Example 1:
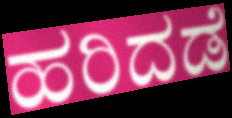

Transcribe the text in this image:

ಹರಿದಡೆ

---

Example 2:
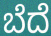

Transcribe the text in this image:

ಬೆದೆ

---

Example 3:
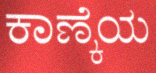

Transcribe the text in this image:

ಕಾಣ್ಕೆಯ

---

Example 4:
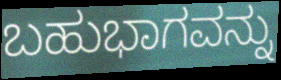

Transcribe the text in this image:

ಬಹುಭಾಗವನ್ನು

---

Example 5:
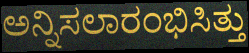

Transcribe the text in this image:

ಅನ್ನಿಸಲಾರಂಭಿಸಿತ್ತು